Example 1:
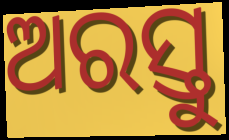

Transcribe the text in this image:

ଅରସ୍ତୁ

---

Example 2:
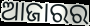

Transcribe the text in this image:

ଆଜାରର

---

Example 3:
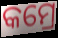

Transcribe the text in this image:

କମ୍ରେ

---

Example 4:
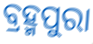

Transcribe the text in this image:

ବ୍ରହ୍ମପୁରା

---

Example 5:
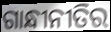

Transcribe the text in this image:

ଗାନ୍ଧୀନୀତିର